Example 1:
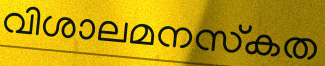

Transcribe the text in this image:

വിശാലമനസ്‌കത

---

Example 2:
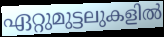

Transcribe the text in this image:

ഏറ്റുമുട്ടലുകളിൽ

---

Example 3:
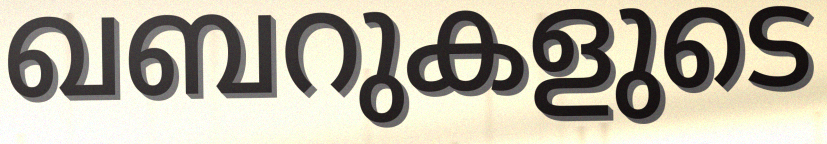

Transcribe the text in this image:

ഖബറുകളുടെ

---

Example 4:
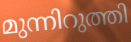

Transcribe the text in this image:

മുന്നിറുത്തി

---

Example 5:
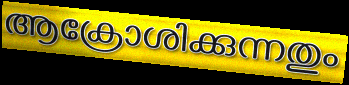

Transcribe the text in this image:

ആക്രോശിക്കുന്നതും